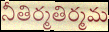
నీతిర్మతిర్మమ